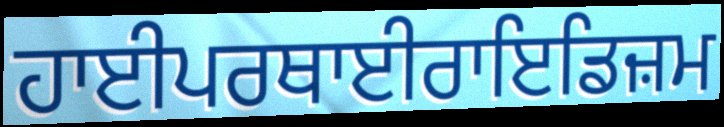
ਹਾਈਪਰਥਾਈਰਾਇਡਿਜ਼ਮ